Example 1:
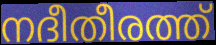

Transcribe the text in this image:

നദീതീരത്ത്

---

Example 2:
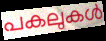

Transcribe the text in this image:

പകലുകൾ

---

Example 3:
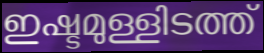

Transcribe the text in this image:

ഇഷ്ടമുള്ളിടത്ത്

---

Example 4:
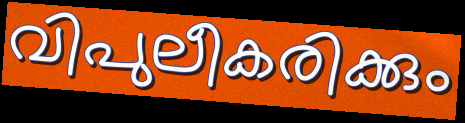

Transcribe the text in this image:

വിപുലീകരിക്കും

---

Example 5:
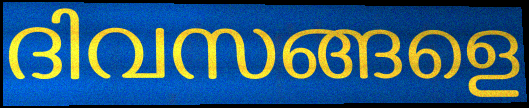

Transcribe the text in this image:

ദിവസങ്ങളെ